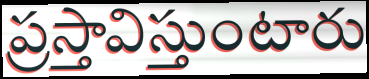
ప్రస్తావిస్తుంటారు